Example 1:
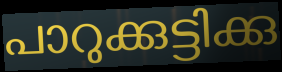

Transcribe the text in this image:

പാറുക്കുട്ടിക്കു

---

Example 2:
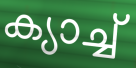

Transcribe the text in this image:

ക്യാച്ച്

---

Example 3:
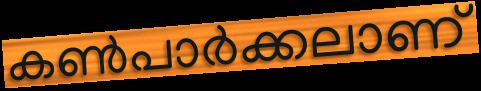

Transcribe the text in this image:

കൺപാർക്കലാണ്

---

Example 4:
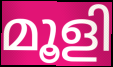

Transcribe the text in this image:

മൂളി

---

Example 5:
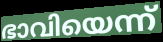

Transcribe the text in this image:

ഭാവിയെന്ന്